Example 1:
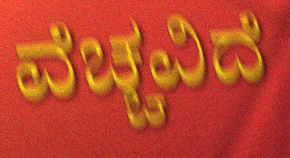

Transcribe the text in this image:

ವೆಚ್ಚವಿದೆ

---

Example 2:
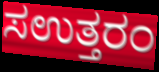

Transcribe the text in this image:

ಸಉತ್ತರಂ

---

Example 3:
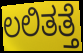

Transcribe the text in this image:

ಲಲಿತತ್ತೆ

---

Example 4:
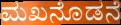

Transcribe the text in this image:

ಮಖನೊಡನೆ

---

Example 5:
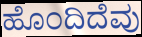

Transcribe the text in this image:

ಹೊಂದಿದೆವು